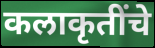
कलाकृतींचे